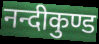
नन्दीकुण्ड